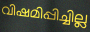
വിഷമിപ്പിച്ചില്ല